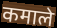
कमाले